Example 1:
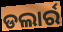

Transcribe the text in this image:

ଡଲାର୍ର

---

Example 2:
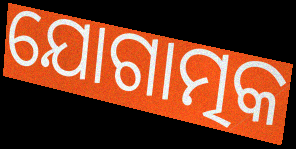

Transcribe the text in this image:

ଯୋଗାତ୍ମକ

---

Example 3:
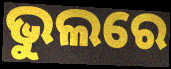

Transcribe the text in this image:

ଭୁଲରେ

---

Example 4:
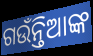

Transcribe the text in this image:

ଗଉଁନ୍ତିଆଙ୍କ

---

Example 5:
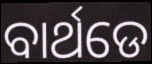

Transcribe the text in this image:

ବାର୍ଥଡେ